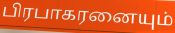
பிரபாகரனையும்